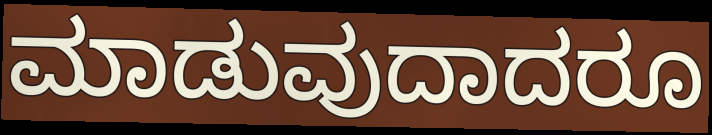
ಮಾಡುವುದಾದರೂ